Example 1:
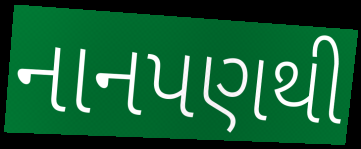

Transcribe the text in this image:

નાનપણથી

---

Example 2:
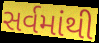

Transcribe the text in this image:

સર્વમાંથી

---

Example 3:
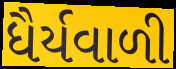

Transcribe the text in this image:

ધૈર્યવાળી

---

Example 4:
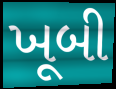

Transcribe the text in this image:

ખૂબી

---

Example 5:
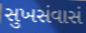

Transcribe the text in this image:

સુખસંવાસં